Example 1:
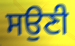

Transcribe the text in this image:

ਸਉਣੀ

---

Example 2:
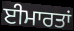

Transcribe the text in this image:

ਈਮਾਰਤਾਂ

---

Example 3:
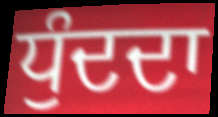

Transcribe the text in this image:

ਧੁੰਦਦਾ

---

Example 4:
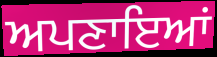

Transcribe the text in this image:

ਅਪਣਾਇਆਂ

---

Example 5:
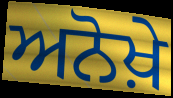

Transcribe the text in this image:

ਅਨੋਖ਼ੇ